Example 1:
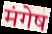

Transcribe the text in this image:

मंगेष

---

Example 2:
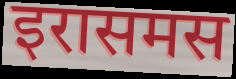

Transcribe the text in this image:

इरासमस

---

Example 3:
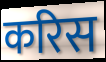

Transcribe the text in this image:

करिस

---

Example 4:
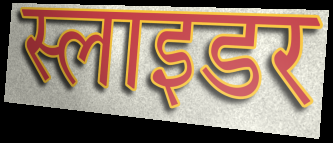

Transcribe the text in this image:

स्लाइडर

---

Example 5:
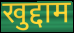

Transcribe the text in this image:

खुद्दाम